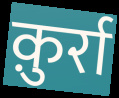
क़ुर्रा